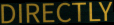
DIRECTLY